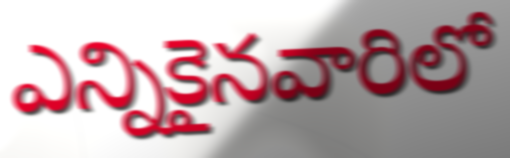
ఎన్నికైనవారిలో